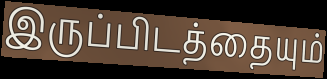
இருப்பிடத்தையும்